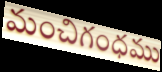
మంచిగంధము